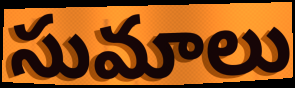
సుమాలు